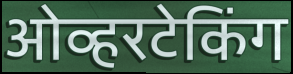
ओव्हरटेकिंग